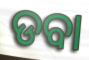
ଡବା